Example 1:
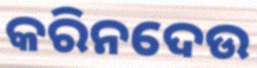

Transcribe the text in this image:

କରିନଦେଉ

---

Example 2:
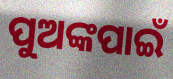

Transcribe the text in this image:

ପୁଅଙ୍କପାଇଁ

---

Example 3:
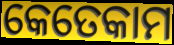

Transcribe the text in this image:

କେତେକାମ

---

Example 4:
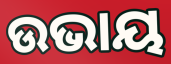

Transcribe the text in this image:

ଉଭାୟ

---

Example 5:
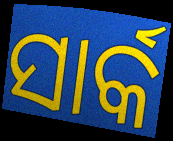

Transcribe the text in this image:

ସାର୍କ